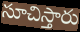
సూచిస్తారు